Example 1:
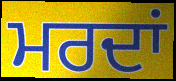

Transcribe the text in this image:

ਮਰਦਾਂ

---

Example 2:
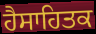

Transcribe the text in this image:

ਹੈਸਾਹਿਤਕ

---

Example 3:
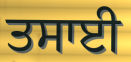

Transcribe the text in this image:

ਤਸਾਈ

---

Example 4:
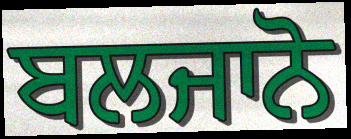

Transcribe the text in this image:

ਬਲਜਾਨੋ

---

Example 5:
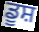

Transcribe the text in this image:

ਡੂਸ਼